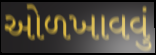
ઓળખાવવું